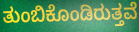
ತುಂಬಿಕೊಂಡಿರುತ್ತವೆ